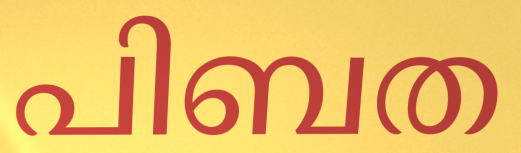
പിബത